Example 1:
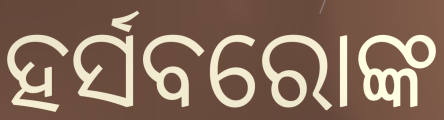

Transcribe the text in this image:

ହର୍ସବରୋଙ୍କ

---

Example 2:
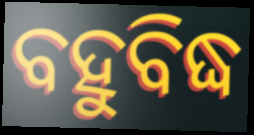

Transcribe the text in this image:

ବହୁବିଦ୍ଧ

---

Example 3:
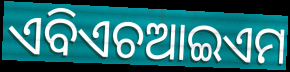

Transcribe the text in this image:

ଏବିଏଚଆଇଏମ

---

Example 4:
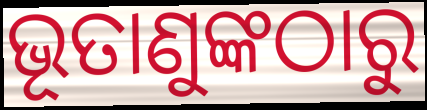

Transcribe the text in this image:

ଭୂତାଣୁଙ୍କଠାରୁ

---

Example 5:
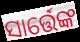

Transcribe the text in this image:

ସାର୍ତ୍ତେଙ୍କ